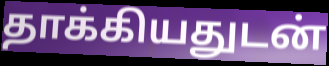
தாக்கியதுடன்